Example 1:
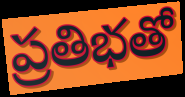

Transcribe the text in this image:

ప్రతిభతో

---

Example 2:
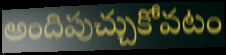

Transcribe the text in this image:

అందిపుచ్చుకోవటం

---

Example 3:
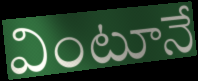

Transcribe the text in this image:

వింటూనే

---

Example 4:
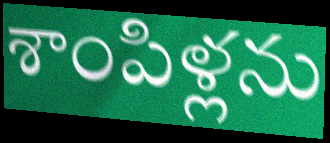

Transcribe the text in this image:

శాంపిళ్లను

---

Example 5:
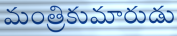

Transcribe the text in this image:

మంత్రికుమారుడు